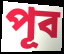
পূব